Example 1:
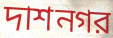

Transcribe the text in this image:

দাশনগর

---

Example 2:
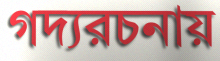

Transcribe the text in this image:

গদ্যরচনায়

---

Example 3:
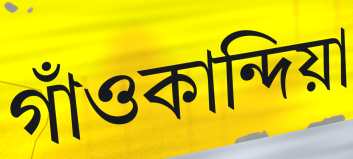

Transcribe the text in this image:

গাঁওকান্দিয়া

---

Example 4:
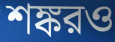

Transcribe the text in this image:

শঙ্করও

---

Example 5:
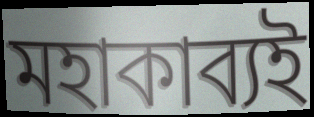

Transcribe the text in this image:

মহাকাব্যই